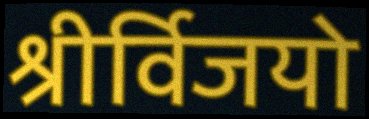
श्रीर्विजयो